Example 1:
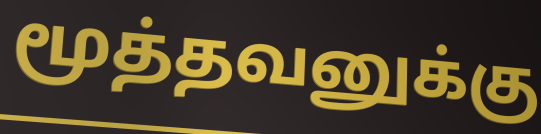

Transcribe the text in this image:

மூத்தவனுக்கு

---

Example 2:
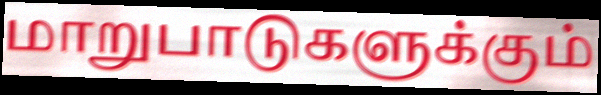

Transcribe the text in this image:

மாறுபாடுகளுக்கும்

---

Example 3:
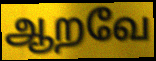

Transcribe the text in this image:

ஆறவே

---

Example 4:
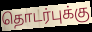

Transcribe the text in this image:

தொடர்புக்கு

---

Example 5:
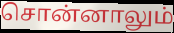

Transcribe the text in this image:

சொன்னாலும்